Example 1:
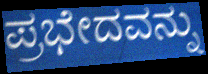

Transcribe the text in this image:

ಪ್ರಭೇದವನ್ನು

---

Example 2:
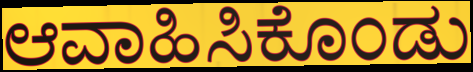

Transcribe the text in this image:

ಆವಾಹಿಸಿಕೊಂಡು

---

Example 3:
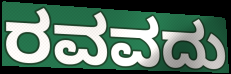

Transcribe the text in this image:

ರವವದು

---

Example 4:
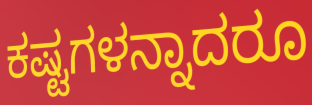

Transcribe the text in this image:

ಕಷ್ಟಗಳನ್ನಾದರೂ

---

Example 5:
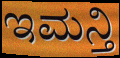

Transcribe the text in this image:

ಇಮನ್ತಿ